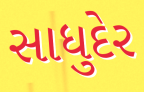
સાધુદેર